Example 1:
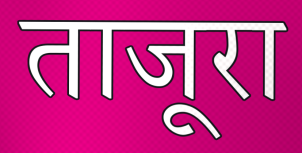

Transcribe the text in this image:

ताजूरा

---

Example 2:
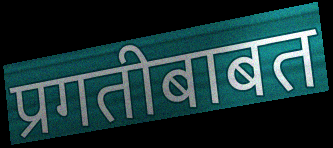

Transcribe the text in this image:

प्रगतीबाबत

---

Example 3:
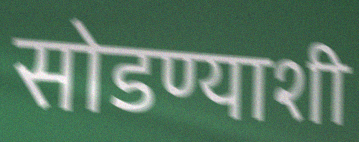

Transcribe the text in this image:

सोडण्याशी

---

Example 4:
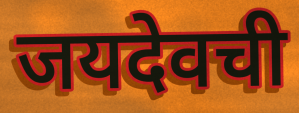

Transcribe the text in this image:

जयदेवची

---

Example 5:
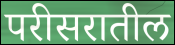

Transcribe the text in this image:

परीसरातील